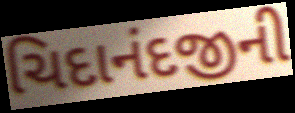
ચિદાનંદજીની